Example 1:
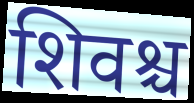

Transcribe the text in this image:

शिवश्च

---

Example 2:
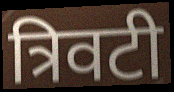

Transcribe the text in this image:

त्रिवटी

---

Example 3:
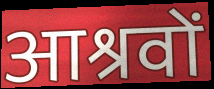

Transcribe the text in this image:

आश्रवों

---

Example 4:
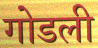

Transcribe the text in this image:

गोडली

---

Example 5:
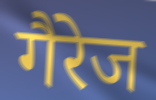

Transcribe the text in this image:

गैरेज